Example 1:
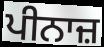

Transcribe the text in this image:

ਪੀਨਾਜ਼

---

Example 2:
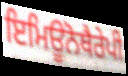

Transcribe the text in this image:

ਇਮਿਊਨੋਥੈਰੇਪੀ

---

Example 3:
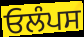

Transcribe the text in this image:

ਓਲੰਪਸ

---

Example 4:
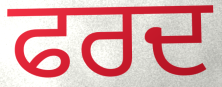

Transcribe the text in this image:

ਫਰਦ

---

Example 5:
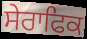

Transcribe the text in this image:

ਸੇਰਾਫਿਕ